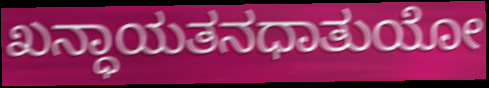
ಖನ್ಧಾಯತನಧಾತುಯೋ